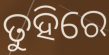
ତୁହିରେ